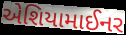
એશિયામાઈનર